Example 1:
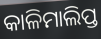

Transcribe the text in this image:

କାଳିମାଲିପ୍ତ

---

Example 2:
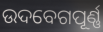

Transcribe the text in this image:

ଉଦବେଗପୂର୍ଣ୍ଣ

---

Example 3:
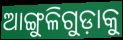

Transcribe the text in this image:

ଆଙ୍ଗୁଳିଗୁଡ଼ାକୁ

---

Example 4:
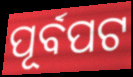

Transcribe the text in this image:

ପୂର୍ବପଟ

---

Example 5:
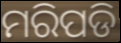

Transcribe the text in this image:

ମରିପଡି